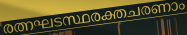
രത്നഘടസ്ഥരക്തചരണാം